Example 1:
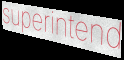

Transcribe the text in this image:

superintend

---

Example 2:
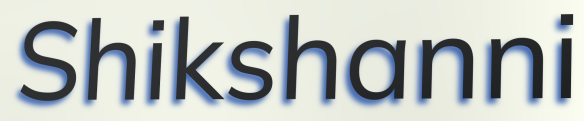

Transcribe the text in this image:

Shikshanni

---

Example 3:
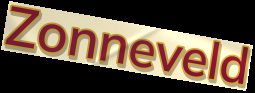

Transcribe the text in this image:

Zonneveld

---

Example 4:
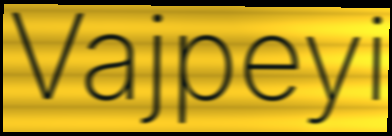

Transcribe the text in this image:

Vajpeyi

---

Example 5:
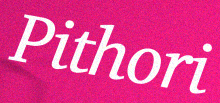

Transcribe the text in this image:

Pithori